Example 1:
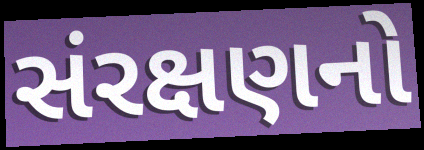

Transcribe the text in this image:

સંરક્ષણનો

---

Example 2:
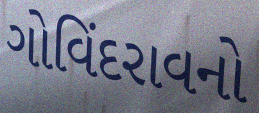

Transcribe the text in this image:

ગોવિંદરાવનો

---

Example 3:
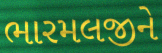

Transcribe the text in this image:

ભારમલજીને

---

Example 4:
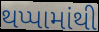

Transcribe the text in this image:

થપ્પામાંથી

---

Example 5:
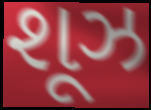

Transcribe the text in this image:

શૂઝ